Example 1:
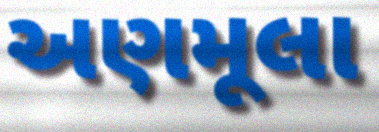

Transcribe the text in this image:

અણમૂલા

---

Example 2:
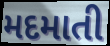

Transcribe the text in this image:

મદમાતી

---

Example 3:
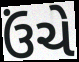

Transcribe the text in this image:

ઉંચે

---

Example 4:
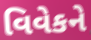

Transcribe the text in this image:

વિવેકને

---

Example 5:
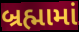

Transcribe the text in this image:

બ્રહ્મામાં